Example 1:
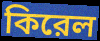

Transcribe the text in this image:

কিরেল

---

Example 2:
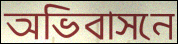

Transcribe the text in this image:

অভিবাসনে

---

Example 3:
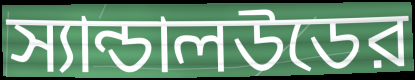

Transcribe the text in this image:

স্যান্ডালউডের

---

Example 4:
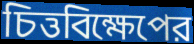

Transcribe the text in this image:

চিত্তবিক্ষেপের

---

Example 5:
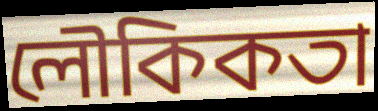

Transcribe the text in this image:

লৌকিকতা